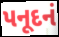
પનૂદનં